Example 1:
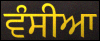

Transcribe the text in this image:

ਵੰਸੀਆ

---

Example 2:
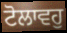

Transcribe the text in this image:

ਟੋਲਾਵਹੁ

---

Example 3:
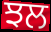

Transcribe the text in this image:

ਝਲ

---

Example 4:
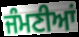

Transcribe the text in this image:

ਜੰਮਣੀਆਂ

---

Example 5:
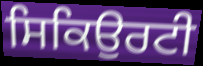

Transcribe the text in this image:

ਸਿਕਿਉਰਟੀ